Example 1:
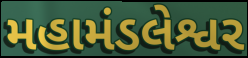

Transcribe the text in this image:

મહામંડલેશ્વર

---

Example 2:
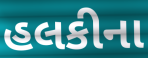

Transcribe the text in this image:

હલકીના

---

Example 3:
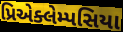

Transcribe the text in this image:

પ્રિએક્લેમ્પસિયા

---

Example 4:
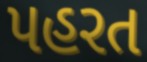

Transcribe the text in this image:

પહરત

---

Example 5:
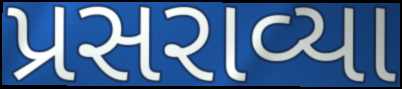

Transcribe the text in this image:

પ્રસરાવ્યા